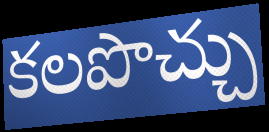
కలపొచ్చు